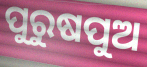
ପୁରୁଷପୁଅ